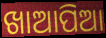
ଖାଆପିଆ